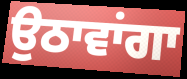
ਉਠਾਵਾਂਗਾ